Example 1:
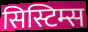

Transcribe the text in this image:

सिस्टिम्स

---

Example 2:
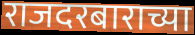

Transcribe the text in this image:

राजदरबाराच्या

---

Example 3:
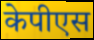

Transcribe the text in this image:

केपीएस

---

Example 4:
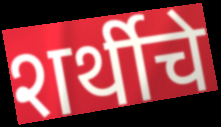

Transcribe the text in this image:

शर्थीचे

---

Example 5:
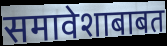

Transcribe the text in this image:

समावेशाबाबत